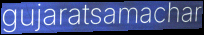
gujaratsamachar